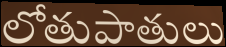
లోతుపాతులు